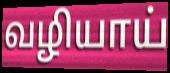
வழியாய்